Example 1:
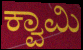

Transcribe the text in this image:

ಕ್ವಾಮಿ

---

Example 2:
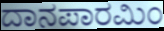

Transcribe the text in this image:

ದಾನಪಾರಮಿಂ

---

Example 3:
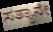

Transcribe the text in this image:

ಸತ್ಯಾನೇ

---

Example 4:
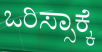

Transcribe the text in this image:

ಒರಿಸ್ಸಾಕ್ಕೆ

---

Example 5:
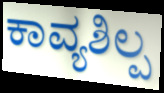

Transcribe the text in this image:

ಕಾವ್ಯಶಿಲ್ಪ